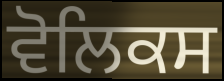
ਵੋਲਿਕਸ